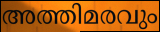
അത്തിമരവും